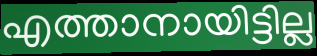
എത്താനായിട്ടില്ല